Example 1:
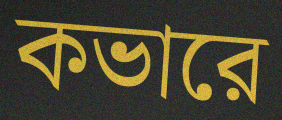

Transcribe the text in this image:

কভারে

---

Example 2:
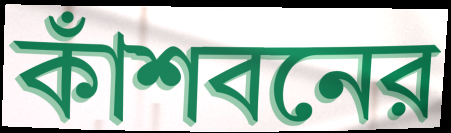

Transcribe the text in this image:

কাঁশবনের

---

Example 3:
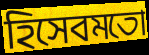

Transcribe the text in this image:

হিসেবমতো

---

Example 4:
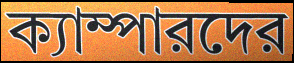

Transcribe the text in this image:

ক্যাম্পারদের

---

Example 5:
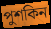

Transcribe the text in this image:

পুশকিন